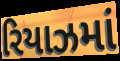
રિયાઝમાં